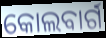
କୋଲବାର୍ଗ